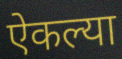
ऐकल्या